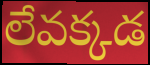
లేవక్కడ